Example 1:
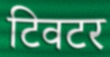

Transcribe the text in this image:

टिवटर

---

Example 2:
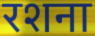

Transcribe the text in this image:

रशना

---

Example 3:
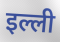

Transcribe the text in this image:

इल्ली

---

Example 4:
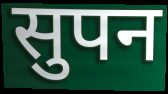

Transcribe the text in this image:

सुपन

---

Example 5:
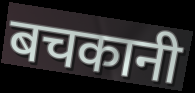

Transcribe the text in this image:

बचकानी